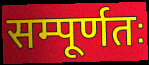
सम्पूर्णतः